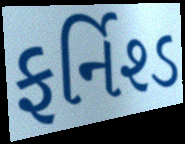
ફર્નિશ્ડ